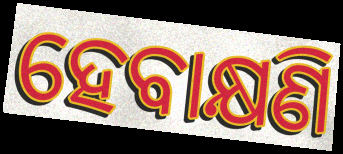
ହେବାକ୍ଷଣି